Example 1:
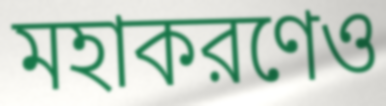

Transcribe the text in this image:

মহাকরণেও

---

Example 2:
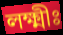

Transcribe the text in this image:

লক্ষ্মীঃ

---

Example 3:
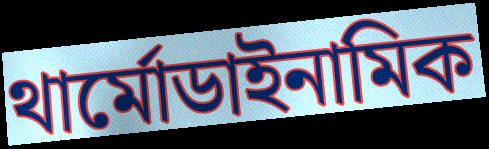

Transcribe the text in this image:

থার্মোডাইনামিক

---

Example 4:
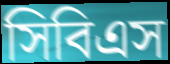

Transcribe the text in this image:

সিবিএস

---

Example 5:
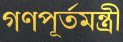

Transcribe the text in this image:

গণপূর্তমন্ত্রী